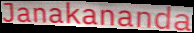
Janakananda